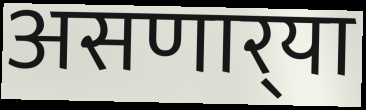
असणार्‍या